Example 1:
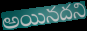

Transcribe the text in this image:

అయినదని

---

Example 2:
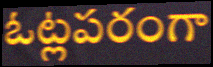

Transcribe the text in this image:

ఓట్లపరంగా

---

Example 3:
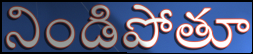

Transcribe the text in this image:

నిండిపోతూ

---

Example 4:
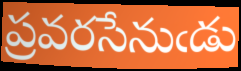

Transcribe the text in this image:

ప్రవరసేనుఁడు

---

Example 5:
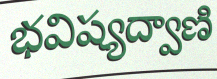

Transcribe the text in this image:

భవిష్యద్వాణి